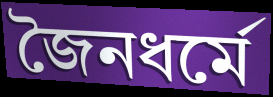
জৈনধর্মে